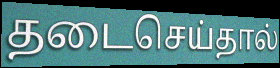
தடைசெய்தால்